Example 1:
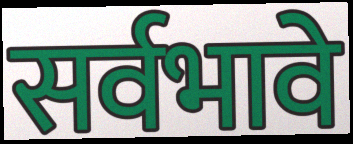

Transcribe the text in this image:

सर्वभावे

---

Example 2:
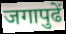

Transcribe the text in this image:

जगापुढें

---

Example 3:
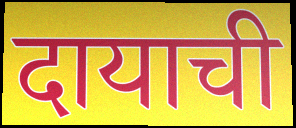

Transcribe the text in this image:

दायाची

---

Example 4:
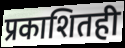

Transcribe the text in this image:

प्रकाशितही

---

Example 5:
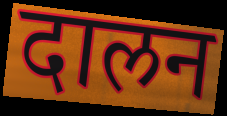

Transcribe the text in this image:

दालन